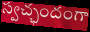
స్వచ్ఛందంగా